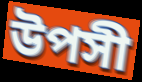
উপসী